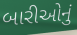
બારીઓનું